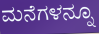
ಮನೆಗಳನ್ನೂ